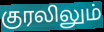
குரலிலும்